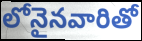
లోనైనవారితో